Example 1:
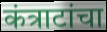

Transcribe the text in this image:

कंत्राटांचा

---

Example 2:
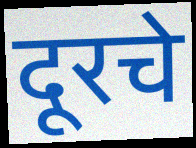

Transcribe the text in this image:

दूरचे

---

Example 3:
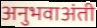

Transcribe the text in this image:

अनुभवाअंती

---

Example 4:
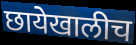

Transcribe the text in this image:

छायेखालीच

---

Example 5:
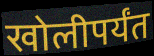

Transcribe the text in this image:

खोलीपर्यंत